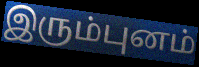
இரும்புனம்